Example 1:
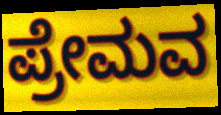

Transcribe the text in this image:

ಪ್ರೇಮವ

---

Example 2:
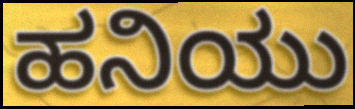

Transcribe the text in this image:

ಹನಿಯು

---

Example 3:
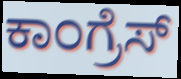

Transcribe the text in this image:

ಕಾಂಗ್ರೆಸ್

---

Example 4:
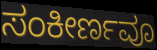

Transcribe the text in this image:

ಸಂಕೀರ್ಣವೂ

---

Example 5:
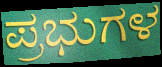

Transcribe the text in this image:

ಪ್ರಭುಗಳ